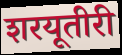
शरयूतीरी